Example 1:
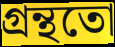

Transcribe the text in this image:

গ্ৰন্থতো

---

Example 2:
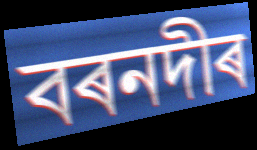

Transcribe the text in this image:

বৰনদীৰ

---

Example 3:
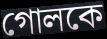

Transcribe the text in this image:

গোলকে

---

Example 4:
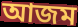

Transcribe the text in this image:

আজম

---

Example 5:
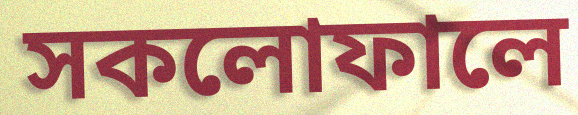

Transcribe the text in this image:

সকলোফালে